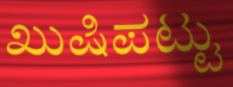
ಖುಷಿಪಟ್ಟು